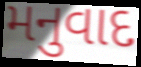
મનુવાદ